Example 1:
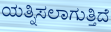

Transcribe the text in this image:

ಯತ್ನಿಸಲಾಗುತ್ತಿದೆ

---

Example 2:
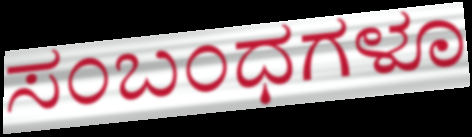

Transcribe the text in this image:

ಸಂಬಂಧಗಳೂ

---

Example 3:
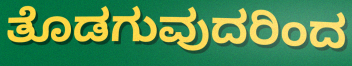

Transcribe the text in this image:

ತೊಡಗುವುದರಿಂದ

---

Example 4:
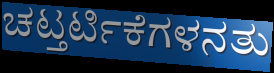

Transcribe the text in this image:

ಚಟ್ತರ್ಟಿಕೆಗಳನತು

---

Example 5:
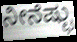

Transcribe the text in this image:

ನೀನೆಷ್ಟು